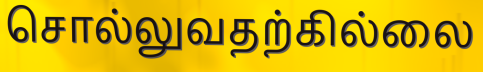
சொல்லுவதற்கில்லை